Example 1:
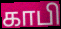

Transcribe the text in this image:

காபி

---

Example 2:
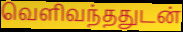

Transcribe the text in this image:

வெளிவந்ததுடன்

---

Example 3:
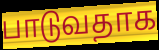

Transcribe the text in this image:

பாடுவதாக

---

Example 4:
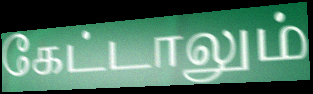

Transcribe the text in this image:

கேட்டாலும்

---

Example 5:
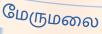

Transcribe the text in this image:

மேருமலை